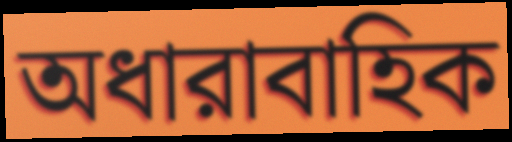
অধারাবাহিক